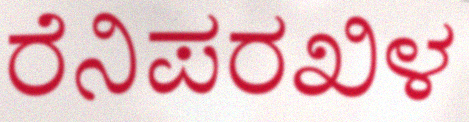
ರೆನಿಪರಖಿಳ